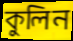
কুলিন